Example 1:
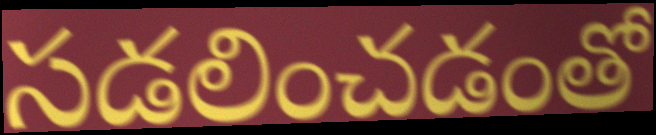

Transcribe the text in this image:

సడలించడంతో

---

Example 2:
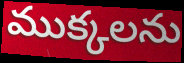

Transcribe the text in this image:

ముక్కలను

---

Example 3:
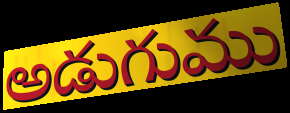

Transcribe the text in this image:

అడుగుము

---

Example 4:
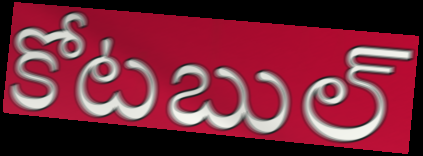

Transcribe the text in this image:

కోటబుల్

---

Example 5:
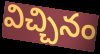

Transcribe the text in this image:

విచ్చినం